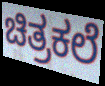
ಚಿತ್ರಕಲೆ